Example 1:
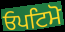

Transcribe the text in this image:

ਓਪਟਿਮੋ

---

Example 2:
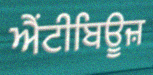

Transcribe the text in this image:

ਐਂਟੀਬਿਊਜ਼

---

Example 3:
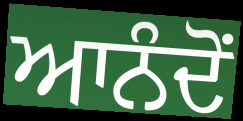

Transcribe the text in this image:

ਆਨੰਦੋਂ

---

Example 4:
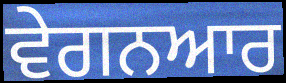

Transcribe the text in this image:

ਵੇਗਨਆਰ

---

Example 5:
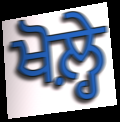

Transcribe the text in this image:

ਖੋਲ਼੍ਹੇ